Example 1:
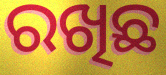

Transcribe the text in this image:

ରଖିଛ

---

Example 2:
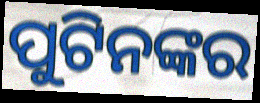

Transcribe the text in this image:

ପୁଟିନଙ୍କର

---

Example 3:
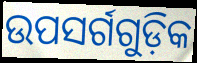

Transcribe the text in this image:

ଉପସର୍ଗଗୁଡ଼ିକ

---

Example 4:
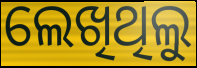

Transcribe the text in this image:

ଲେଖିଥିଲୁ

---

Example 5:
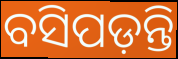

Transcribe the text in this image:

ବସିପଡ଼ନ୍ତି